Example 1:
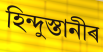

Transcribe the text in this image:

হিন্দুস্তানীৰ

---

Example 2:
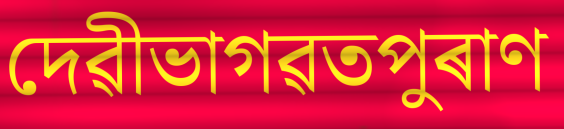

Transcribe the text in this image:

দেৱীভাগৱতপুৰাণ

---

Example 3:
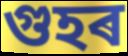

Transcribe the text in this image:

গুহৰ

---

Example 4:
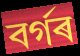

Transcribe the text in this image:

বৰ্গৰ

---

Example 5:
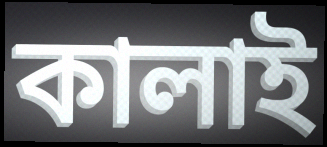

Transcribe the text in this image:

কালাই